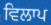
ਵਿਲਾਪ